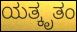
ಯತ್ಕೃತಂ